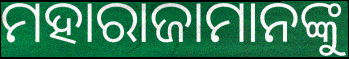
ମହାରାଜାମାନଙ୍କୁ